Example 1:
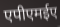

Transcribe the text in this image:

एपीएमईए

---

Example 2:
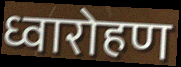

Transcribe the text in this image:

ध्वारोहण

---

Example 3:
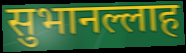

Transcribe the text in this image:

सुभानल्लाह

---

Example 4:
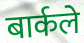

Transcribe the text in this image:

बार्कले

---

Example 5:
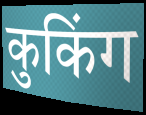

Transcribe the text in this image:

कुकिंग